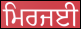
ਮਿਰਜਈ